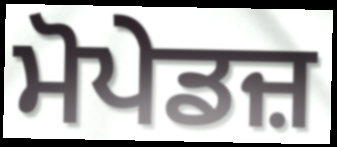
ਮੋਪੇਡਜ਼